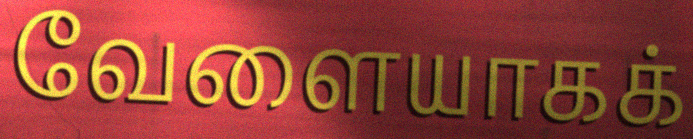
வேளையாகக்